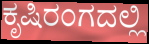
ಕೃಷಿರಂಗದಲ್ಲಿ